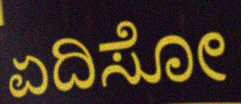
ಏದಿಸೋ